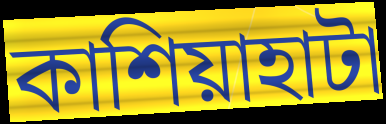
কাশিয়াহাটা